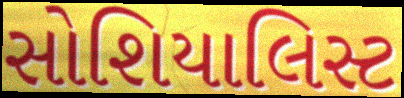
સોશિયાલિસ્ટ